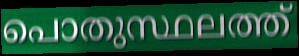
പൊതുസ്ഥലത്ത്